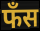
फँस